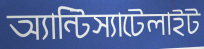
অ্যান্টিস্যাটেলাইট